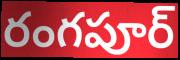
రంగపూర్